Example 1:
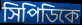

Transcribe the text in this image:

সিপিডিকে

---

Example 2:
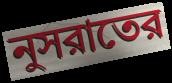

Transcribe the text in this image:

নুসরাতের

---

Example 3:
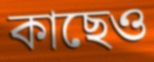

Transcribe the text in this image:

কাছেও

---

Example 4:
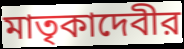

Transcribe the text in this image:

মাতৃকাদেবীর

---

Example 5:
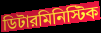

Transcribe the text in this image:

ডিটারমিনিস্টিক